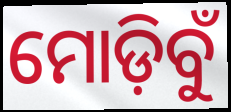
ମୋଡ଼ିବୁଁ